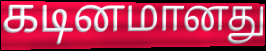
கடினமானது